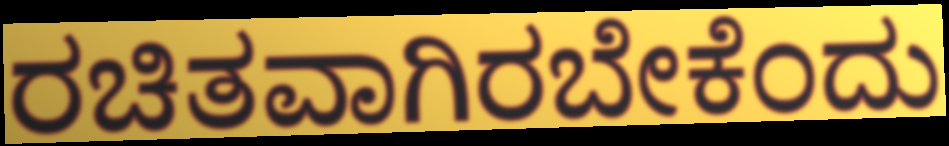
ರಚಿತವಾಗಿರಬೇಕೆಂದು